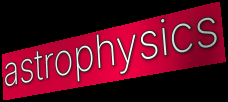
astrophysics